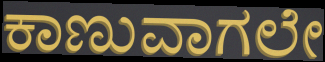
ಕಾಣುವಾಗಲೇ